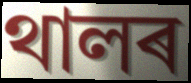
থালৰ